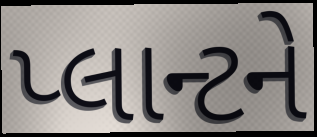
પ્લાન્ટને